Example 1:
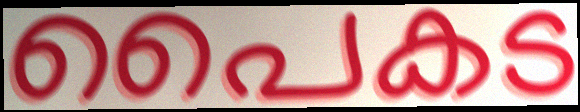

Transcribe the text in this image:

പൈകട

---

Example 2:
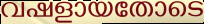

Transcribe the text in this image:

വഷളായതോടെ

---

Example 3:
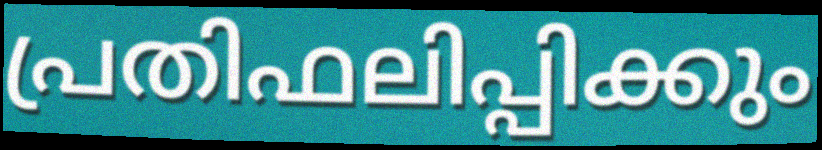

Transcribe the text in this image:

പ്രതിഫലിപ്പിക്കും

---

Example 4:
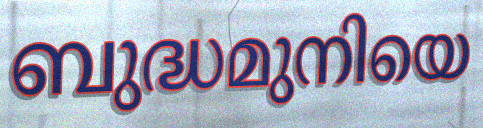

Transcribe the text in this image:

ബുദ്ധമുനിയെ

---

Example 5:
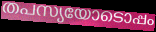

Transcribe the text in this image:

തപസ്യയോടൊപ്പം